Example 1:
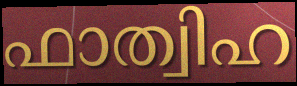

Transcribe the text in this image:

ഫാത്വിഹ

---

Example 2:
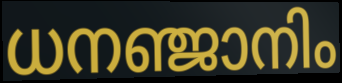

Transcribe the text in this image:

ധനഞ്ജാനിം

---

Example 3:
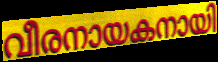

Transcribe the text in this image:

വീരനായകനായി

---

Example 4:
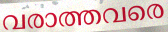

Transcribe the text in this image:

വരാത്തവരെ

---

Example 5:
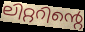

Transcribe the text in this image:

ലിറ്ററിന്റെ